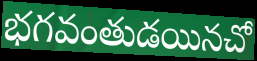
భగవంతుడయినచో